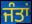
ਜੰਤਾਂ